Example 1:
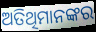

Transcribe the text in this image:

ଅତିଥିମାନଙ୍କର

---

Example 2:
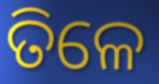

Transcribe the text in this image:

ତିଳେ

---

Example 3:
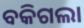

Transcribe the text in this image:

ବକିଗଲା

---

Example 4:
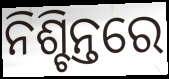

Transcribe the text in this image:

ନିଶ୍ଚିନ୍ତରେ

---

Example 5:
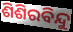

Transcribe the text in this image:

ଶିଶିରବିନ୍ଦୁ